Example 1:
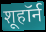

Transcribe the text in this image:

शूहॉर्न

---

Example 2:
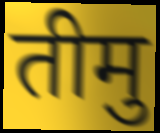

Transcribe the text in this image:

तीमु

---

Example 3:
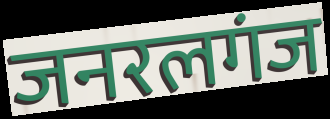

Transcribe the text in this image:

जनरलगंज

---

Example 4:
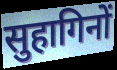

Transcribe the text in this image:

सुहागिनों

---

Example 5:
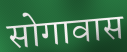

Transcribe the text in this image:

सोगावास